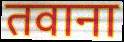
तवाना